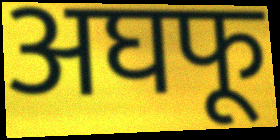
अघफू